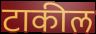
टाकील